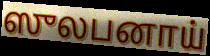
ஸுலபனாய்